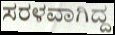
ಸರಳವಾಗಿದ್ದ